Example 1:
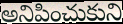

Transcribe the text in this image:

అనిపించుకుని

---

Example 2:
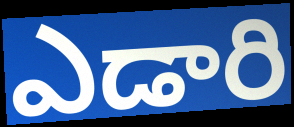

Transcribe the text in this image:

ఎడారి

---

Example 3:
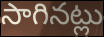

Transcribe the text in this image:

సాగినట్లు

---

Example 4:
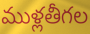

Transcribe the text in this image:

ముళ్లతీగల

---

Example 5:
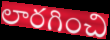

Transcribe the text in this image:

లారగించి